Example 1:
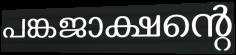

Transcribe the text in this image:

പങ്കജാക്ഷന്റെ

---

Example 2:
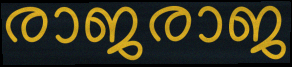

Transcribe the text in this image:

രാജരാജ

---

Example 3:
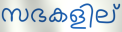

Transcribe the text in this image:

സഭകളില്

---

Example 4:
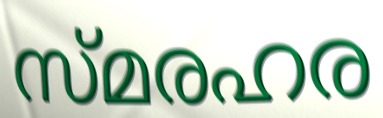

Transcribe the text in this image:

സ്മരഹര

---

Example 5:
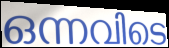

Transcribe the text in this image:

ഒന്നവിടെ